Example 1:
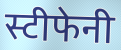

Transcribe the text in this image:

स्टीफेनी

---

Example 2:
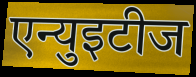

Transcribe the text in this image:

एन्युइटीज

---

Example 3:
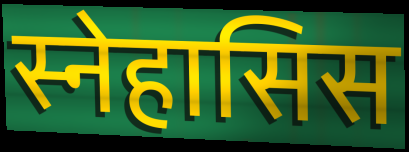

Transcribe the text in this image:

स्नेहासिस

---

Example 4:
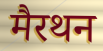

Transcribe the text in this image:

मैरथन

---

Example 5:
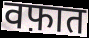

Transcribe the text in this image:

वफ़ात